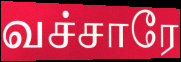
வச்சாரே